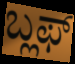
ಬ್ಲಫ್